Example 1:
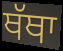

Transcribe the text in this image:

ਥੱਥਾ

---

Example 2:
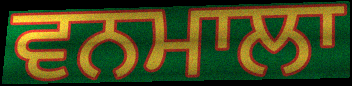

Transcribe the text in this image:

ਵਨਮਾਲਾ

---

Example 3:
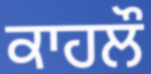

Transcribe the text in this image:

ਕਾਹਲੌ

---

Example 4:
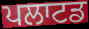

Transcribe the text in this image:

ਪਲਾਟਡ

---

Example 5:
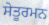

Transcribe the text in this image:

ਸੇਤੂਰਮਨ